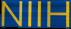
NIIH